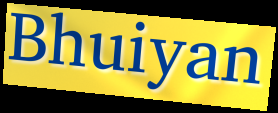
Bhuiyan